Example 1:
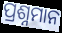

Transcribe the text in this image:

ପ୍ରଶ୍ନମାନ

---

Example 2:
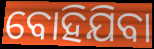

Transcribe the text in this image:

ବୋହିଯିବା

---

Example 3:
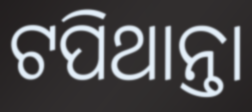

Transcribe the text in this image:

ଟପିଥାନ୍ତା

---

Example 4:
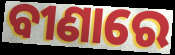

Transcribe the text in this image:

ବୀଣାରେ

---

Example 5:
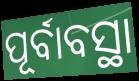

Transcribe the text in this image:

ପୂର୍ବାବସ୍ଥା